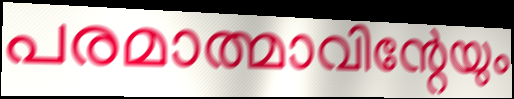
പരമാത്മാവിന്റേയും